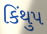
કિંથુપ